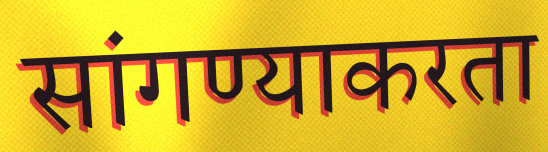
सांगण्याकरता